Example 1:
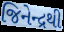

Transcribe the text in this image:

જિનેન્દ્રથી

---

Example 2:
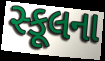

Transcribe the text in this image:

સ્કૂલના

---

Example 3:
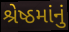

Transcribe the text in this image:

શ્રેષ્ઠમાંનું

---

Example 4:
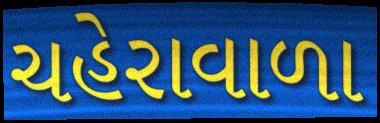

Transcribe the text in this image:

ચહેરાવાળા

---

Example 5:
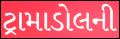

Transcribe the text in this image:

ટ્રામાડોલની